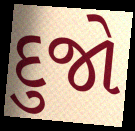
દુજો